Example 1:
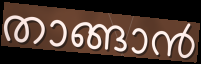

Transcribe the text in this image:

താങ്ങാൻ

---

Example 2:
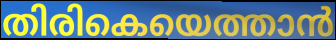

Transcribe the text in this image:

തിരികെയെത്താൻ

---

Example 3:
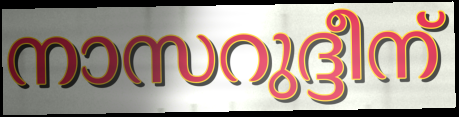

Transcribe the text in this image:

നാസറുദ്ദീന്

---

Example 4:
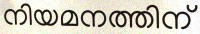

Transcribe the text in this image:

നിയമനത്തിന്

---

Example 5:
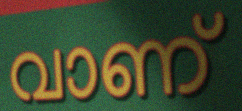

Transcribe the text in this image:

വാണ്